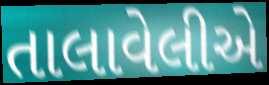
તાલાવેલીએ